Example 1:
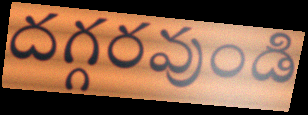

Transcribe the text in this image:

దగ్గరవుండి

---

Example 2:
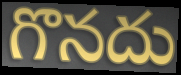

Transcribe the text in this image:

గొనదు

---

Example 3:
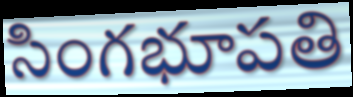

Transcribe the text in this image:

సింగభూపతి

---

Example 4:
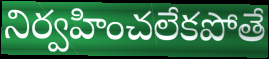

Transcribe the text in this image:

నిర్వహించలేకపోతే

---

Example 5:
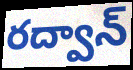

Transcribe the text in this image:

రద్వాన్